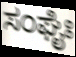
ಸಂಘೈಃ